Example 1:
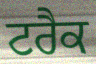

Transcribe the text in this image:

ਟਰੈਕ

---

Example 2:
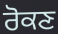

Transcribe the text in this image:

ਰੋਕਣ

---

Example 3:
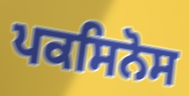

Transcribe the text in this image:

ਪਕਸਿਨੋਸ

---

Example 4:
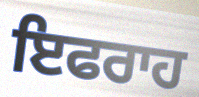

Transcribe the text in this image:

ਇਫਰਾਹ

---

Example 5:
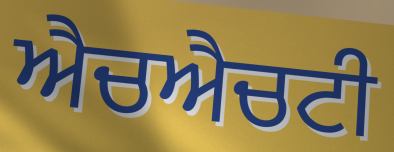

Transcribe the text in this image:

ਐਚਐਚਟੀ